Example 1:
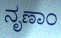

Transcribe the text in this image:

ನೃಣಾಂ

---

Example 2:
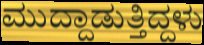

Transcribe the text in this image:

ಮುದ್ದಾಡುತ್ತಿದ್ದಳು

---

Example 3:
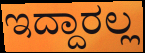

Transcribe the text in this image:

ಇದ್ದಾರಲ್ಲ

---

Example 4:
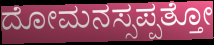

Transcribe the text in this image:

ದೋಮನಸ್ಸಪ್ಪತ್ತೋ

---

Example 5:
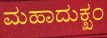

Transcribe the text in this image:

ಮಹಾದುಕ್ಖಂ